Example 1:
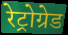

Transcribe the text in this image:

रेट्रोग्रेड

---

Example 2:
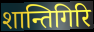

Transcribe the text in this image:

शान्तिगिरि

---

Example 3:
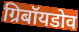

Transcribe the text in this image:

ग्रिबॉयडोव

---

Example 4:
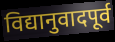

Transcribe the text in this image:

विद्यानुवादपूर्व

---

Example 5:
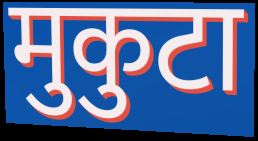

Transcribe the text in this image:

मुकुटा